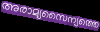
അരാമ്യസൈന്യത്തെ